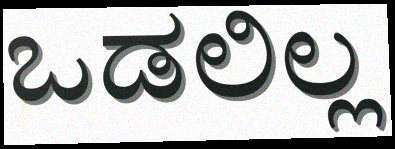
ಒಡಲಿಲ್ಲ